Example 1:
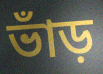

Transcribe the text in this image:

ভাঁড়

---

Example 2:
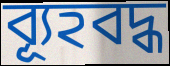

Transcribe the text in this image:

ব্যূহবদ্ধ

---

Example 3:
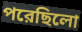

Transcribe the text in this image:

পরেছিলো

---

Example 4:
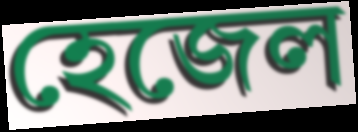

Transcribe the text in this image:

হেজেল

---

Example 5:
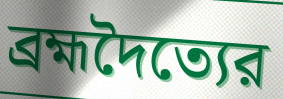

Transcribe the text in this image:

ব্রহ্মদৈত্যের